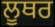
ਲੂਥਰ